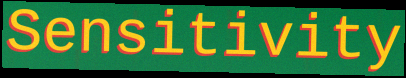
Sensitivity